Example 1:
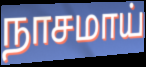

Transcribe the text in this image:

நாசமாய்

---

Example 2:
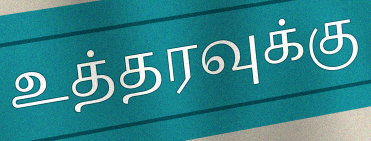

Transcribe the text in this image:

உத்தரவுக்கு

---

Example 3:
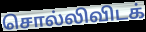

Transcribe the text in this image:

சொல்லிவிடக்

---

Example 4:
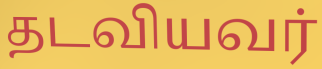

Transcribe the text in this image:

தடவியவர்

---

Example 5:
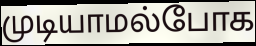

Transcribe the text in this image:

முடியாமல்போக